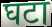
घटा